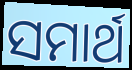
ସମାର୍ଥ